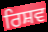
ਰਿਸ਼ਵ